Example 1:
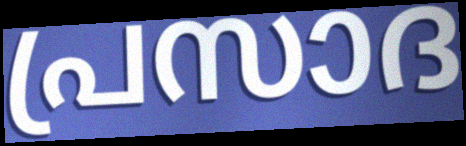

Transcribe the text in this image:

പ്രസാദ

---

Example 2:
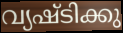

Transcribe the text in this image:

വ്യഷ്ടിക്കു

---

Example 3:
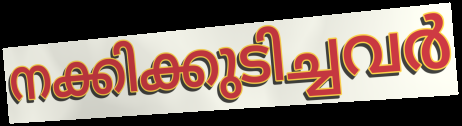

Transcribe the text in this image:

നക്കിക്കുടിച്ചവർ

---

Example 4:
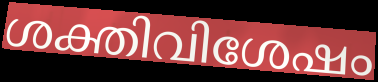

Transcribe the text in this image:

ശക്തിവിശേഷം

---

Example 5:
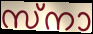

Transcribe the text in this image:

സ്‌നാ